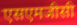
एसएमजीसी